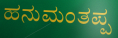
ಹನುಮಂತಪ್ಪ